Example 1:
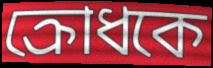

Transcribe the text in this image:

ক্রোধকে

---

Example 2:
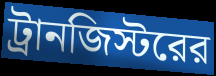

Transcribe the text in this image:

ট্রানজিস্টরের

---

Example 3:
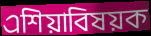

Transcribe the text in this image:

এশিয়াবিষয়ক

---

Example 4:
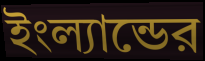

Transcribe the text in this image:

ইংল্যান্ডের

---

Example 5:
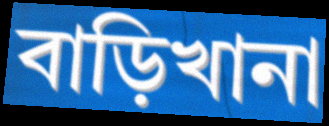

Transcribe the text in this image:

বাড়িখানা